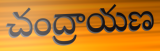
చంద్రాయణ